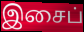
இசைப்